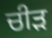
ਚੀੜ